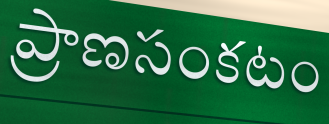
ప్రాణసంకటం